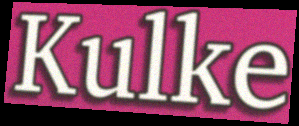
Kulke